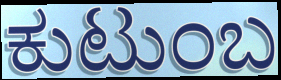
ಕುಟುಂಬ